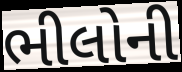
ભીલોની